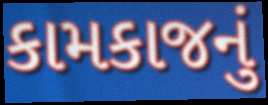
કામકાજનું